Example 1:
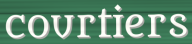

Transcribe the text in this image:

courtiers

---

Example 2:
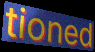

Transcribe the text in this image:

tioned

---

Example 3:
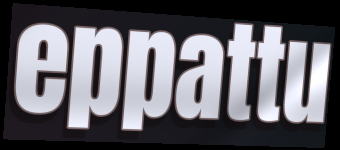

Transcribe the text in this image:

eppattu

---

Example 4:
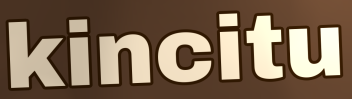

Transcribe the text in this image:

kincitu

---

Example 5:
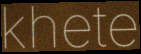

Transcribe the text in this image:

khete